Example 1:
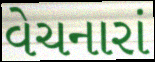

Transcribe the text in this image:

વેચનારાં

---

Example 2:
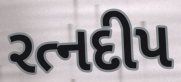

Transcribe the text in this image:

રત્નદીપ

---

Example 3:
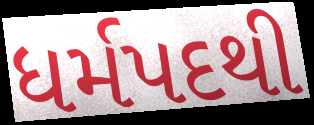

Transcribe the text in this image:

ધર્મપદથી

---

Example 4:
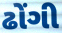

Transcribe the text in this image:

ઢોંગી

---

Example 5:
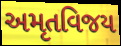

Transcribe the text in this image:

અમૃતવિજય